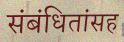
संबंधितांसह